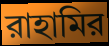
রাহামির